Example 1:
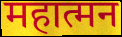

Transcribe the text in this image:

महात्मन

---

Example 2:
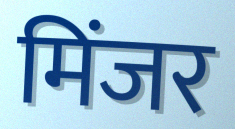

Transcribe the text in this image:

मिंजर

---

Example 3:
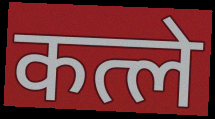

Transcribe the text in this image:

कत्ले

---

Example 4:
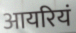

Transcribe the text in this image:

आयरियं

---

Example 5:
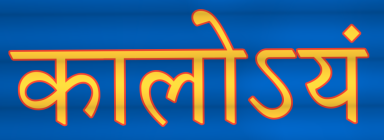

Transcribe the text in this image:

कालोऽयं